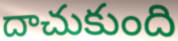
దాచుకుంది